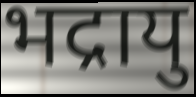
भद्रायु